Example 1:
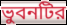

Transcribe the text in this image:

ভুবনটির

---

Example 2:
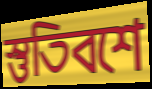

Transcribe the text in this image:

স্তুতিবশে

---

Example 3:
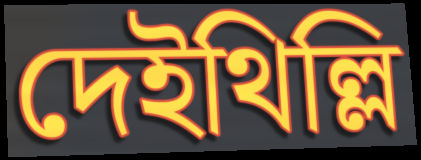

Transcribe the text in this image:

দেইথিল্লি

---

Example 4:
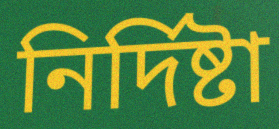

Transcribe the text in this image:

নির্দিষ্টা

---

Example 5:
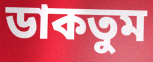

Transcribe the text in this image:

ডাকতুম